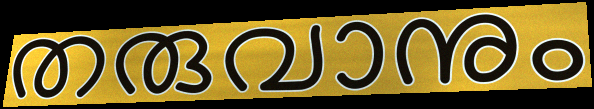
തരുവാനും